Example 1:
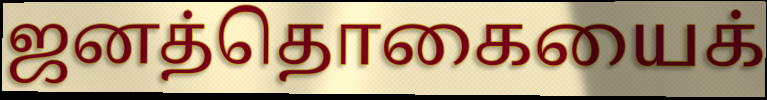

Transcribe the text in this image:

ஜனத்தொகையைக்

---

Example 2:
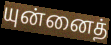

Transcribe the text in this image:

யுன்னைத்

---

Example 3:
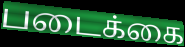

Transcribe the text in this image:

படைக்கை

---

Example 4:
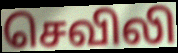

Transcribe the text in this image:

செவிலி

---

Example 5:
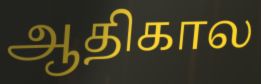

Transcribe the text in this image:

ஆதிகால